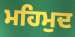
ਮਹਿਮੁਦ